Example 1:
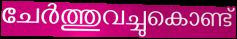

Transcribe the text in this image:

ചേർത്തുവച്ചുകൊണ്ട്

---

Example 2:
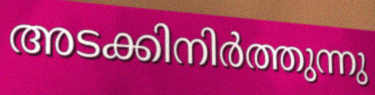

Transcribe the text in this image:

അടക്കിനിർത്തുന്നു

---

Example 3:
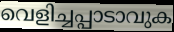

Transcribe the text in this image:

വെളിച്ചപ്പാടാവുക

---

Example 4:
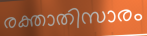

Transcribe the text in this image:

രക്താതിസാരം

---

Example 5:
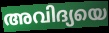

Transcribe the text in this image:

അവിദ്യയെ